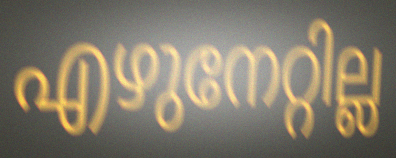
എഴുനേറ്റില്ല